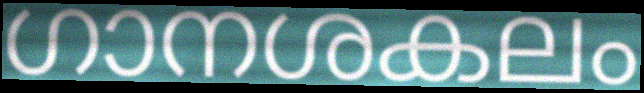
ഗാനശകലം